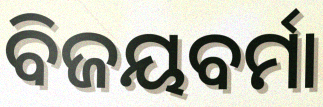
ବିଜୟବର୍ମା